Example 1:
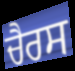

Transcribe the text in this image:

ਚੈਰਸ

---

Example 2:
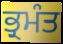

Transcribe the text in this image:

ਭ੍ਰਮੰਤ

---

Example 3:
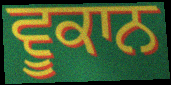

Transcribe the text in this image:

ਵੂਕਾਨ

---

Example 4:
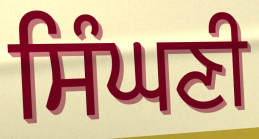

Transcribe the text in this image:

ਸਿੰਘਣੀ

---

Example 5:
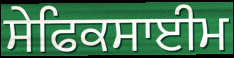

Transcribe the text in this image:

ਸੇਫਿਕਸਾਈਮ